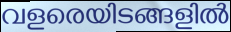
വളരെയിടങ്ങളിൽ